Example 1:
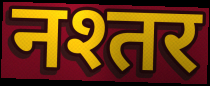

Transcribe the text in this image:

नश्तर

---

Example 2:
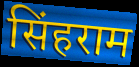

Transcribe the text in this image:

सिंहराम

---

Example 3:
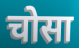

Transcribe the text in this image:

चोसा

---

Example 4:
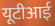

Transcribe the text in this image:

यूटीआई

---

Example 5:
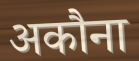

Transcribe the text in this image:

अकौना